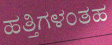
ಹತ್ತಿಗಳಂತಹ